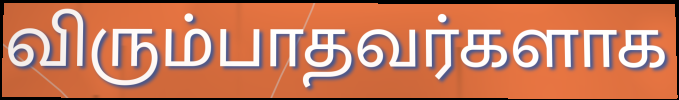
விரும்பாதவர்களாக